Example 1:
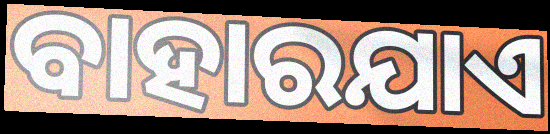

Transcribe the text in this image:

ବାହାରଯାଏ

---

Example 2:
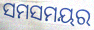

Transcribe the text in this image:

ସମସମୟର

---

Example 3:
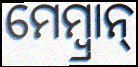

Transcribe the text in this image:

ମେମ୍ବ୍ରାନ୍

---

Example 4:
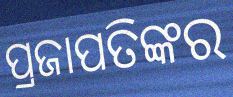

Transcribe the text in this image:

ପ୍ରଜାପତିଙ୍କର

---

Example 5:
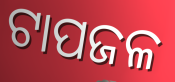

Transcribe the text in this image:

ଟାପଜଳ